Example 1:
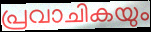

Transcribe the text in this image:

പ്രവാചികയും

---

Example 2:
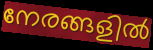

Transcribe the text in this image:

നേരങ്ങളിൽ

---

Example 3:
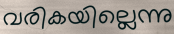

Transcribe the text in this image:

വരികയില്ലെന്നു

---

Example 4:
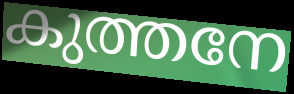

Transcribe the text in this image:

കുത്തനേ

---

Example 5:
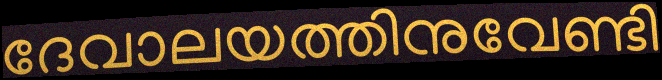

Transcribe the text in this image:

ദേവാലയത്തിനുവേണ്ടി